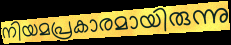
നിയമപ്രകാരമായിരുന്നു